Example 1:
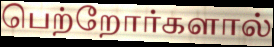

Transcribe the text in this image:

பெற்றோர்களால்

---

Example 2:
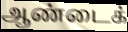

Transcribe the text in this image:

ஆண்டைக்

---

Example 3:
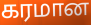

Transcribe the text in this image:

கரமான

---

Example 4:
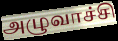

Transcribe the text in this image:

அழுவாச்சி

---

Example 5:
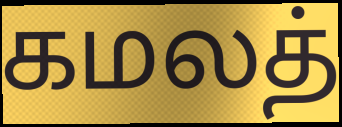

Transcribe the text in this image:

கமலத்